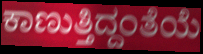
ಕಾಣುತ್ತಿದ್ದಂತೆಯೆ